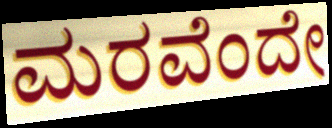
ಮರವೆಂದೇ